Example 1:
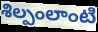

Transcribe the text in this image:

శిల్పంలాంటి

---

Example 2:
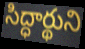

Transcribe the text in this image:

సిద్ధార్థుని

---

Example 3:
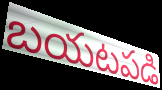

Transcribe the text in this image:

బయటపడి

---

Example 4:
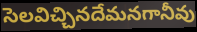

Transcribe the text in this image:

సెలవిచ్చినదేమనగానీవు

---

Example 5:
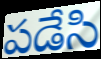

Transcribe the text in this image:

పడేసి